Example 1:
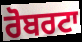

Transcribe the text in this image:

ਰੋਬਰਟਾ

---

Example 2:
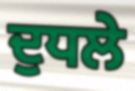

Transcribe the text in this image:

ਦੁਧਲੇ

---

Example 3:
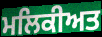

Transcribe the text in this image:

ਮਲਿਕੀਅਤ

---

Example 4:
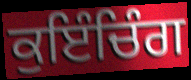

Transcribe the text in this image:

ਕੁਇੰਚਿੰਗ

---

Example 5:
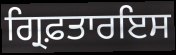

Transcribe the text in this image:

ਗ੍ਰਿਫ਼ਤਾਰਇਸ